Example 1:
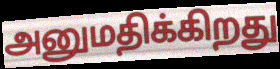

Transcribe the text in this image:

அனுமதிக்கிறது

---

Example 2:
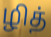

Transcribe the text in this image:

ழித்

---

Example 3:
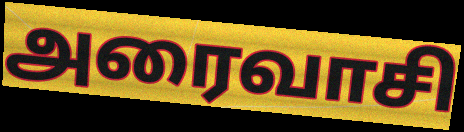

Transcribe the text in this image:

அரைவாசி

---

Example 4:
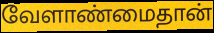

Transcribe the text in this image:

வேளாண்மைதான்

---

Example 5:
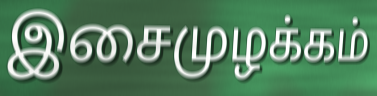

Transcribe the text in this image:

இசைமுழக்கம்